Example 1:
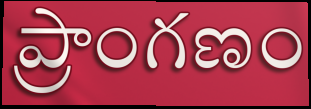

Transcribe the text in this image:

ప్రాంగణం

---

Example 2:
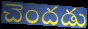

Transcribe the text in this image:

చెందడు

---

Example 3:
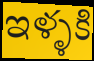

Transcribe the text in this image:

ఇళ్ళకి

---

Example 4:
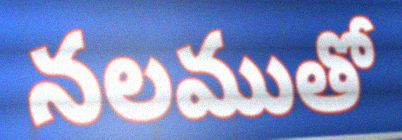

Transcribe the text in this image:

నలముతో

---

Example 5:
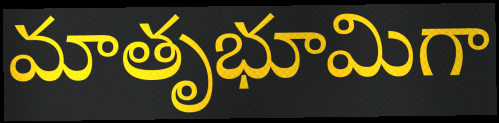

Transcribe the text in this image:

మాతృభూమిగా